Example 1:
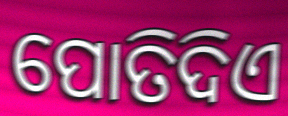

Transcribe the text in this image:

ପୋତିଦିଏ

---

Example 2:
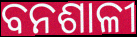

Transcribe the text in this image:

ବନଶାଳୀ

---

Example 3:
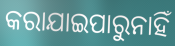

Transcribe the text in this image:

କରାଯାଇପାରୁନାହିଁ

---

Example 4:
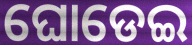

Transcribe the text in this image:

ଘୋଡେଇ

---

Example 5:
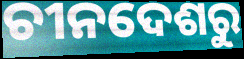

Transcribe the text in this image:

ଚୀନଦେଶରୁ